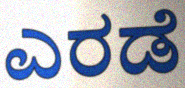
ಎರಡೆ